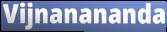
Vijnanananda